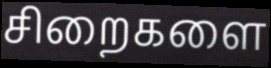
சிறைகளை